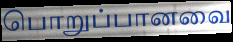
பொறுப்பானவை